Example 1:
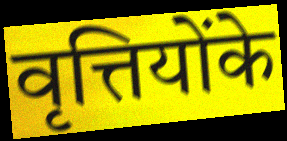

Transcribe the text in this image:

वृत्तियोंके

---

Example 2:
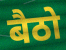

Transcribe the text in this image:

बैठो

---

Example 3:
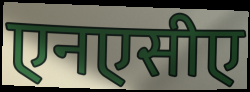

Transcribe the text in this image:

एनएसीए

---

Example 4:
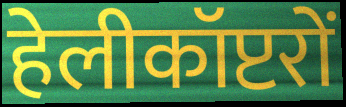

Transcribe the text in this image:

हेलीकॉप्टरों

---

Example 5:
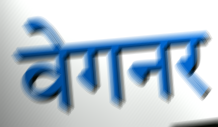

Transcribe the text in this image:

वेगनर